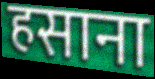
हसाना